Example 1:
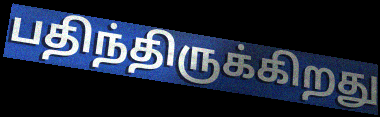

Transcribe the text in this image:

பதிந்திருக்கிறது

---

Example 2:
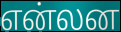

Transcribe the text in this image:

என்லன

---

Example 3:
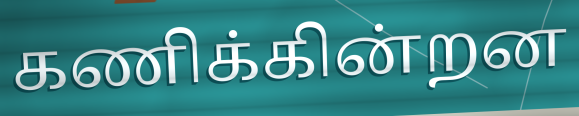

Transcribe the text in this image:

கணிக்கின்றன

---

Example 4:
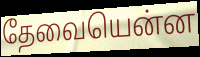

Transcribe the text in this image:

தேவையென்ன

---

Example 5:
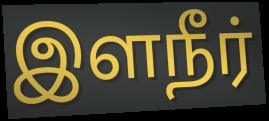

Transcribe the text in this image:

இளநீர்